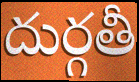
దుర్గతీ